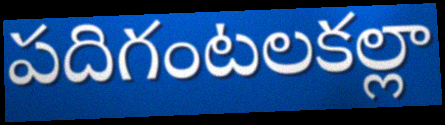
పదిగంటలకల్లా